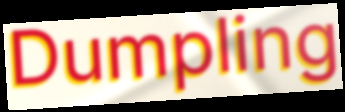
Dumpling